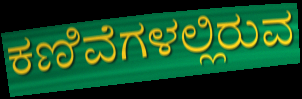
ಕಣಿವೆಗಳಲ್ಲಿರುವ